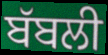
ਬੱਬਲੀ